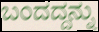
ಬಂದದ್ದನ್ನು